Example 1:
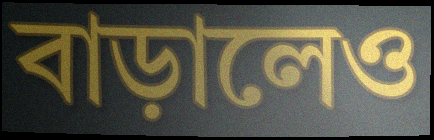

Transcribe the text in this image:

বাড়ালেও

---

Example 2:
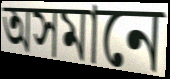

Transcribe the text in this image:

অসমানে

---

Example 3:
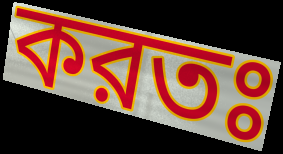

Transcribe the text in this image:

করতঃ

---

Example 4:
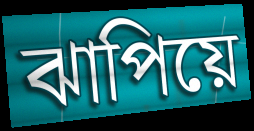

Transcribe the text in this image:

ঝাপিয়ে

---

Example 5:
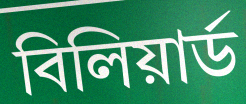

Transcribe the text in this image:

বিলিয়ার্ড